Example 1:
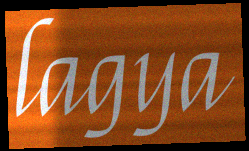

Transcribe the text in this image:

lagya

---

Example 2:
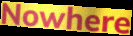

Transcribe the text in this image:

Nowhere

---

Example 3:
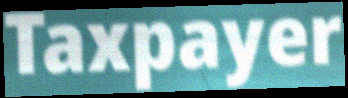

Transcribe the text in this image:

Taxpayer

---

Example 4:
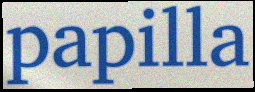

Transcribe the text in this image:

papilla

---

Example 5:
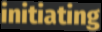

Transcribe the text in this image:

initiating